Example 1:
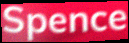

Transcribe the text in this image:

Spence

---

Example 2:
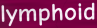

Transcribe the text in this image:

lymphoid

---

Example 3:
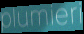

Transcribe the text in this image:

plumieri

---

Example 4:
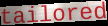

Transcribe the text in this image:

tailored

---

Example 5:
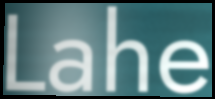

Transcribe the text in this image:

Lahe